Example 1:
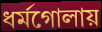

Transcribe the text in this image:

ধর্মগোলায়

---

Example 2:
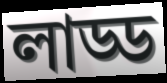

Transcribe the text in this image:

লাড্ড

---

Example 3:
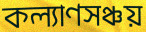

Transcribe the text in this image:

কল্যাণসঞ্চয়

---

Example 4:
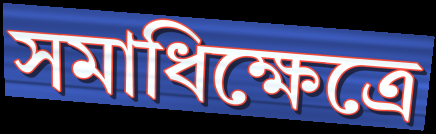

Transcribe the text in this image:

সমাধিক্ষেত্রে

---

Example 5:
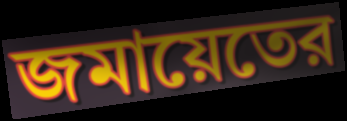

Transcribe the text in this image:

জমায়েতের